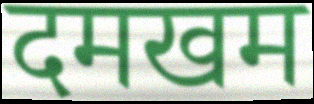
दमखम